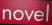
novel